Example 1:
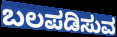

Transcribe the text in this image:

ಬಲಪಡಿಸುವ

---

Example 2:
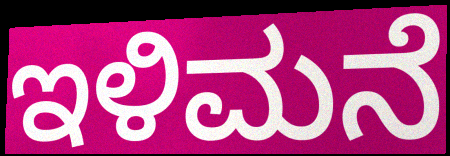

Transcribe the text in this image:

ಇಳಿಮನೆ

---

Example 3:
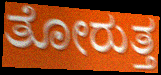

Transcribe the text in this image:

ತೋರುತ್ತ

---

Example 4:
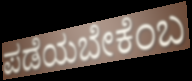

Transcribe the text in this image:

ಪಡೆಯಬೇಕೆಂಬ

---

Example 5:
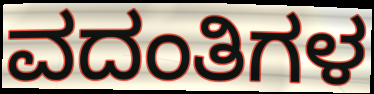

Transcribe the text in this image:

ವದಂತಿಗಳ